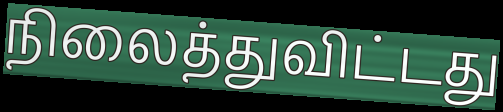
நிலைத்துவிட்டது